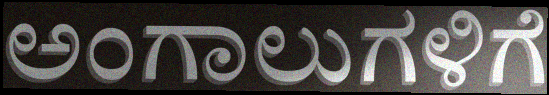
ಅಂಗಾಲುಗಳಿಗೆ